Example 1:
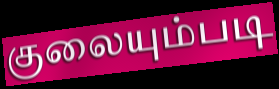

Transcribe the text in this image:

குலையும்படி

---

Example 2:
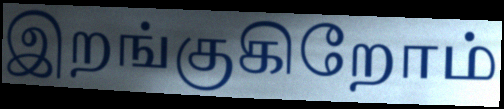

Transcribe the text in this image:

இறங்குகிறோம்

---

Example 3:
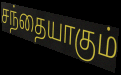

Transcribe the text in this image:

சந்தையாகும்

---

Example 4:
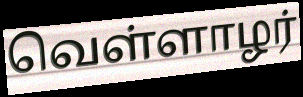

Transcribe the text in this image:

வெள்ளாழர்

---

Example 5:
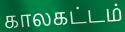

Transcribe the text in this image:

காலகட்டம்